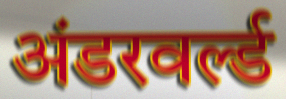
अंडरवर्ल्‍ड